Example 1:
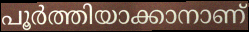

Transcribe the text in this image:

പൂർത്തിയാക്കാനാണ്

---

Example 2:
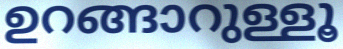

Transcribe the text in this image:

ഉറങ്ങാറുള്ളൂ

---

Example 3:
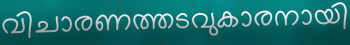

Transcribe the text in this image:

വിചാരണത്തടവുകാരനായി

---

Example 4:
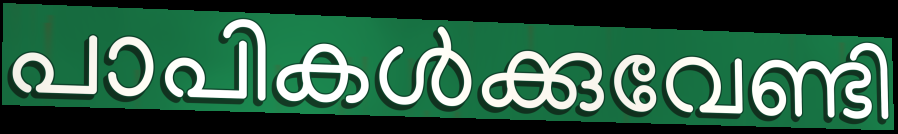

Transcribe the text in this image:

പാപികൾക്കുവേണ്ടി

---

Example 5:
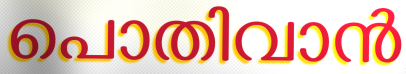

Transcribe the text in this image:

പൊതിവാൻ